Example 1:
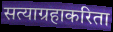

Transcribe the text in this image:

सत्याग्रहाकरिता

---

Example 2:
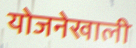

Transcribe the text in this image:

योजनेखाली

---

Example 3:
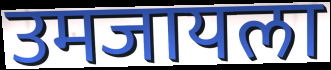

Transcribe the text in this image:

उमजायला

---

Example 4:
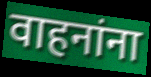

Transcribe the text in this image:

वाहनांना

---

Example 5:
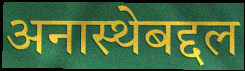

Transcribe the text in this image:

अनास्थेबद्दल